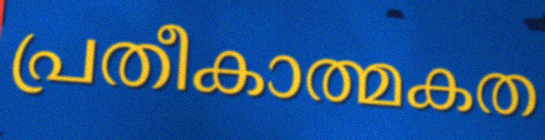
പ്രതീകാത്മകത